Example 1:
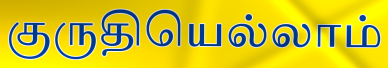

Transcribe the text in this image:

குருதியெல்லாம்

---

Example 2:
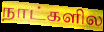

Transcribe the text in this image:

நாட்களில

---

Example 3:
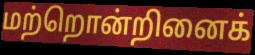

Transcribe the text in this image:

மற்றொன்றினைக்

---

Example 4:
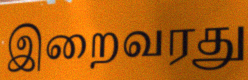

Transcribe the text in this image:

இறைவரது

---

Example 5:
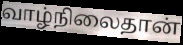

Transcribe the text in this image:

வாழ்நிலைதான்